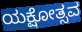
ಯಕ್ಷೋತ್ಸವ